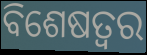
ବିଶେଷତ୍ବର